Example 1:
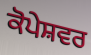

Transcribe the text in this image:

ਕੋਪੇਸ਼ਵਰ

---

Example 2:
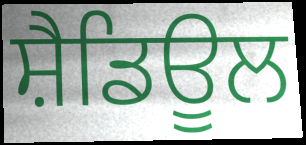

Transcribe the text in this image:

ਸ਼ੈਡਿਊਲ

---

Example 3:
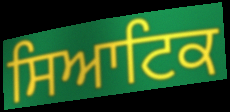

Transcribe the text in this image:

ਸਿਆਟਿਕ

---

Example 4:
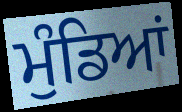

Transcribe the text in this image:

ਮੁੰਡਿਆਂ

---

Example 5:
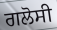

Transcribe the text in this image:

ਗਲੋਸੀ